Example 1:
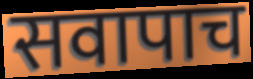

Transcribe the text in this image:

सवापाच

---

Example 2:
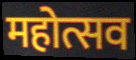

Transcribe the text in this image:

महोत्सव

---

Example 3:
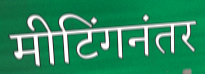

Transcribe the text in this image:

मीटिंगनंतर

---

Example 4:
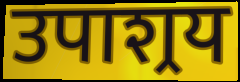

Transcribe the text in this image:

उपाश्रय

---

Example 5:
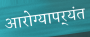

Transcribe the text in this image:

आरोग्यापर्यंत